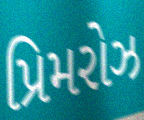
પ્રિમરોઝ